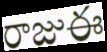
రాజుఈ